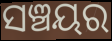
ସଞ୍ଚୟର